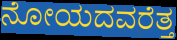
ನೋಯದವರೆತ್ತ